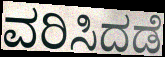
ವರಿಸಿದಡೆ